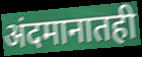
अंदमानातही